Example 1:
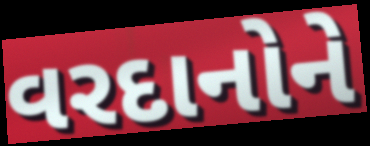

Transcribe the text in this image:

વરદાનોને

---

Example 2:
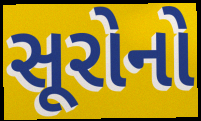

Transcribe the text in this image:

સૂરોનો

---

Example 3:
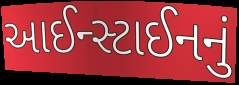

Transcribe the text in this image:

આઈન્સ્ટાઈનનું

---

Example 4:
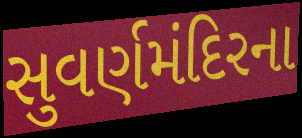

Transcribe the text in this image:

સુવર્ણમંદિરના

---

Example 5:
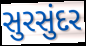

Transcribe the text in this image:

સુરસુંદર